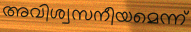
അവിശ്വസനീയമെന്ന്